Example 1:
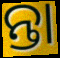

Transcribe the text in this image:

ନ୍ତା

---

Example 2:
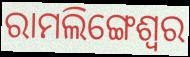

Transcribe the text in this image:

ରାମଲିଙ୍ଗେଶ୍ୱର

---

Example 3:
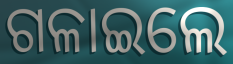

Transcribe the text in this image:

ଗଳାଇଲେ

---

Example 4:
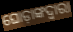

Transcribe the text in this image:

ଘୋଡ଼ାଙ୍କଦ୍ୱାରା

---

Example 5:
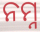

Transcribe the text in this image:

ନମ୍ନ